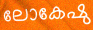
ലോകേഷു